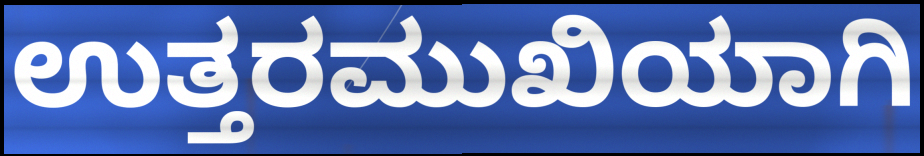
ಉತ್ತರಮುಖಿಯಾಗಿ